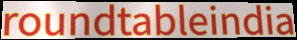
roundtableindia